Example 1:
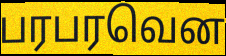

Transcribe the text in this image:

பரபரவென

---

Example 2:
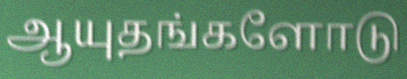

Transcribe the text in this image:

ஆயுதங்களோடு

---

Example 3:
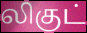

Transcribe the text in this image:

லிகுட்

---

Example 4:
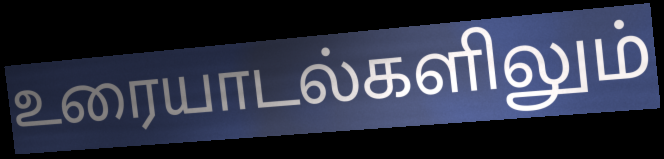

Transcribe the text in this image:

உரையாடல்களிலும்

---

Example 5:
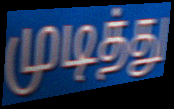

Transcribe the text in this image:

முடித்து